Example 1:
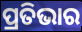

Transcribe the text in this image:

ପ୍ରତିଭାର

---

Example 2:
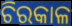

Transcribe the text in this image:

ଚିରକାଳ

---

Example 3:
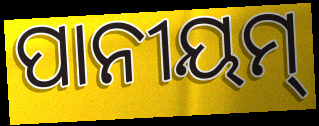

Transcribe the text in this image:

ପାନୀୟମ୍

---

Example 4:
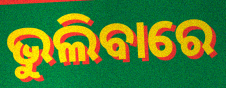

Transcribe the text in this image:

ଭୁଲିବାରେ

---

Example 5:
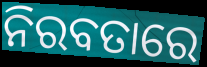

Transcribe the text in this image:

ନିରବତାରେ